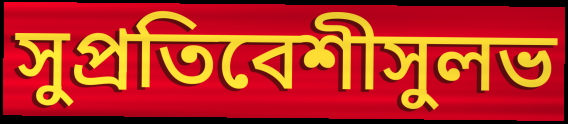
সুপ্রতিবেশীসুলভ